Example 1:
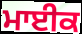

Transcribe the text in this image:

ਮਾਈਕ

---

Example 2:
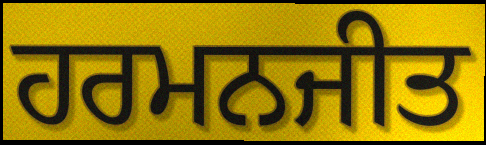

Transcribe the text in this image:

ਹਰਮਨਜੀਤ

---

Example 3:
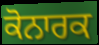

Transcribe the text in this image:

ਕੋਨਾਰਕ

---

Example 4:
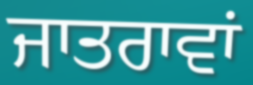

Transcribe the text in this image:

ਜਾਤਰਾਵਾਂ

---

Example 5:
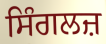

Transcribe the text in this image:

ਸਿੰਗਲਜ਼